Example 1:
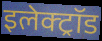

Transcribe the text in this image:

इलेक्ट्रॉड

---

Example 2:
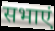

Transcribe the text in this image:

सभाएं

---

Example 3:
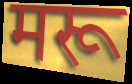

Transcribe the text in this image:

मरू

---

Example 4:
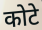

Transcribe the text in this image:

कोटे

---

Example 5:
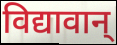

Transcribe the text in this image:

विद्यावान्